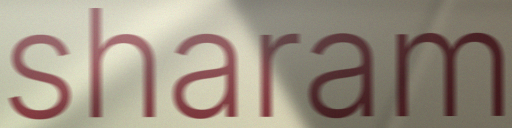
sharam